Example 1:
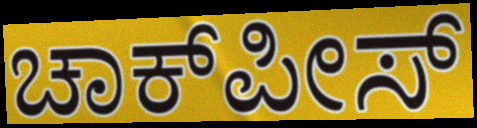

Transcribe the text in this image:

ಚಾಕ್‌ಪೀಸ್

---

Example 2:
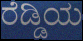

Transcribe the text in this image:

ರೆಡ್ಡಿಯ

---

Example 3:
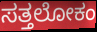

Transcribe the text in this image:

ಸತ್ತಲೋಕಂ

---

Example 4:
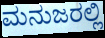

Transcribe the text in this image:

ಮನುಜರಲ್ಲಿ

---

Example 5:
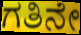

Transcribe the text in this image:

ಗತಿನೇ